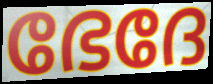
ഭേദേ